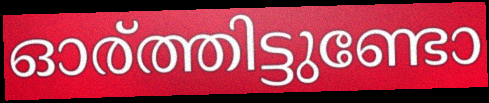
ഓര്ത്തിട്ടുണ്ടോ